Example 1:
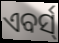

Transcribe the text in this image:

ଏବର୍ସ୍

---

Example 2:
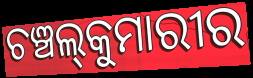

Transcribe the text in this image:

ଚଞ୍ଚଲ୍‍କୁମାରୀର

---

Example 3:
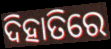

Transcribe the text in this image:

ଦିହାତିରେ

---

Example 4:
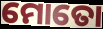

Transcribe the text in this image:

ମୋତୋ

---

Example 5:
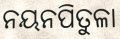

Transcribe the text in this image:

ନୟନପିତୁଳା